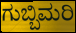
ಗುಬ್ಬಿಮರಿ